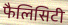
फैलिसिटी